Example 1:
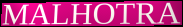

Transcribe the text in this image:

MALHOTRA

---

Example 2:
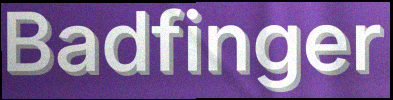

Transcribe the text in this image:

Badfinger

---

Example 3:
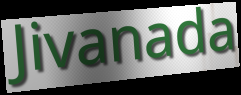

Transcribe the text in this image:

Jivanada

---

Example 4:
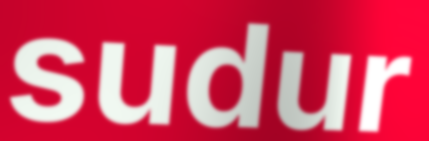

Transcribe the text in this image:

sudur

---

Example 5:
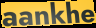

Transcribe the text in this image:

aankhe